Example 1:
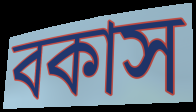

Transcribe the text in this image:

বকাস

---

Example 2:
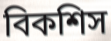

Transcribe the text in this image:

বিকশিস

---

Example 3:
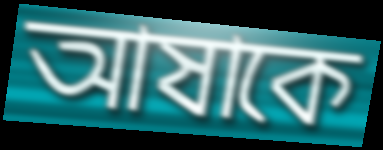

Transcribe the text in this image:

আষাকে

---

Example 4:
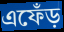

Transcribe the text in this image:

এফেঁড়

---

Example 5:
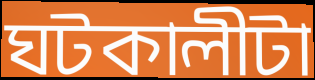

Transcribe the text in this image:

ঘটকালীটা